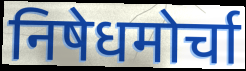
निषेधमोर्चा